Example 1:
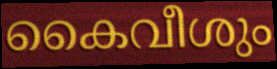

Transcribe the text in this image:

കൈവീശും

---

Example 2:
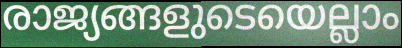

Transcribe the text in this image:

രാജ്യങ്ങളുടെയെല്ലാം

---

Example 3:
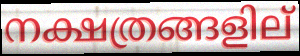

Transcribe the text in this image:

നക്ഷത്രങ്ങളില്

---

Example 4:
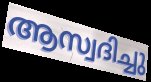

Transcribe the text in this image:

ആസ്വദിച്ചു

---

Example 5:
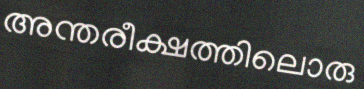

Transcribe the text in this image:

അന്തരീക്ഷത്തിലൊരു